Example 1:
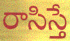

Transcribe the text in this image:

రాసిస్తే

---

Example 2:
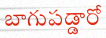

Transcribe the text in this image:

బాగుపడ్డారో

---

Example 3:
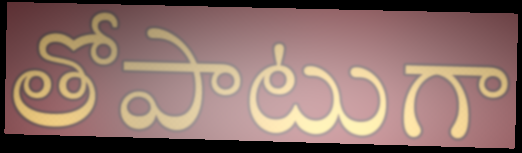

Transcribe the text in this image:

తోపాటుగా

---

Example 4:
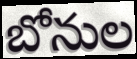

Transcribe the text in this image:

బోనుల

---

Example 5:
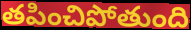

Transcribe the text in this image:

తపించిపోతుంది